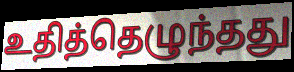
உதித்தெழுந்தது